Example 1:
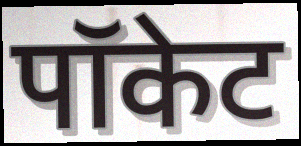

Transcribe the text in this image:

पॉकेट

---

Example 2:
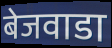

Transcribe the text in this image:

बेजवाडा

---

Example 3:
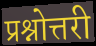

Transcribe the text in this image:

प्रश्नोत्तरी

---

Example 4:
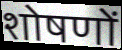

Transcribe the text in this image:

शोषणों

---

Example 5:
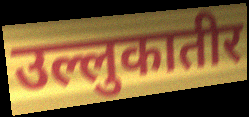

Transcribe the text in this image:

उल्लुकातीर